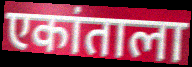
एकांताला